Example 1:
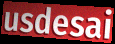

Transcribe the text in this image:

usdesai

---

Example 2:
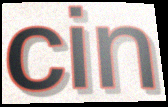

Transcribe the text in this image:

cin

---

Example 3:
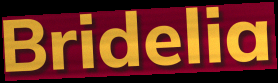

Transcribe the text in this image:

Bridelia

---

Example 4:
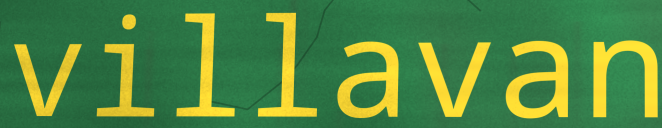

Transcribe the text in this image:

villavan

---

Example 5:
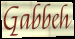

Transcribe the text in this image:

Gabbeh